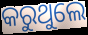
କରୁଥୁଲେ